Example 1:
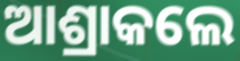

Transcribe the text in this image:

ଆଶ୍ରାକଲେ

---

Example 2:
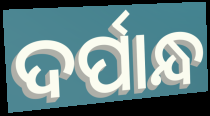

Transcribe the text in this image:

ଦର୍ପାନ୍ଧ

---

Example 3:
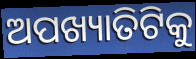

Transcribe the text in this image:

ଅପଖ୍ୟାତିଟିକୁ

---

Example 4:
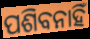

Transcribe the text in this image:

ପଶିବନାହିଁ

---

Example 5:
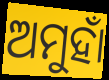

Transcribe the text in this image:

ଅମୁହାଁ